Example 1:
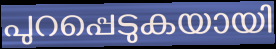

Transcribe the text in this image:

പുറപ്പെടുകയായി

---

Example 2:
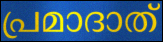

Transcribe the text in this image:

പ്രമാദാത്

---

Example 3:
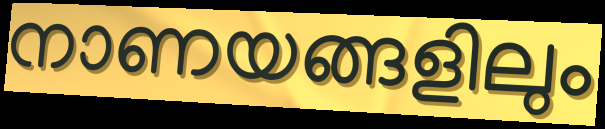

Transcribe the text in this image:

നാണയങ്ങളിലും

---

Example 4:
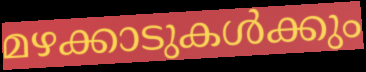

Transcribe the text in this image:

മഴക്കാടുകൾക്കും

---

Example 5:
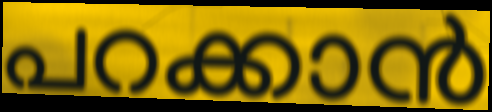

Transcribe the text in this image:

പറക്കാൻ